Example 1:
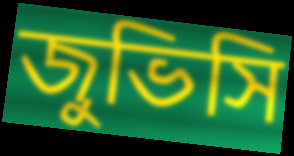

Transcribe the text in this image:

জুভিসি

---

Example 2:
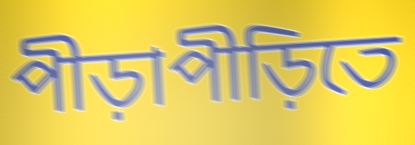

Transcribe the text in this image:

পীড়াপীড়িতে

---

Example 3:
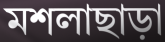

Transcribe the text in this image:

মশলাছাড়া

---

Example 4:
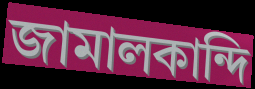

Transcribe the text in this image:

জামালকান্দি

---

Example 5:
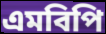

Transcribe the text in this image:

এমবিপি